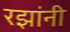
रझांनी